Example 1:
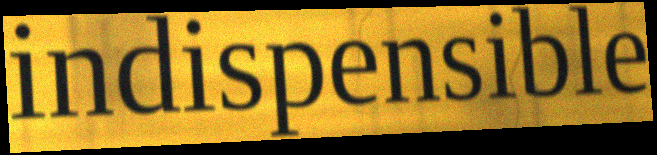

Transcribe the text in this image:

indispensible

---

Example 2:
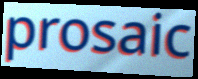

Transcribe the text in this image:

prosaic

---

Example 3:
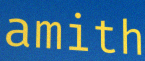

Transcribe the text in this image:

amith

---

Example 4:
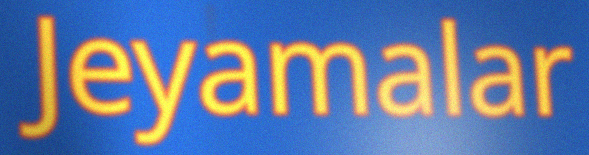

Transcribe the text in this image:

Jeyamalar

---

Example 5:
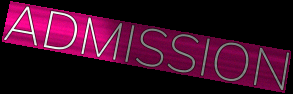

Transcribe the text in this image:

ADMISSION